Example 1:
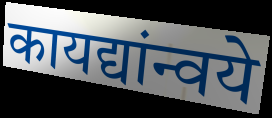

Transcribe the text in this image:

कायद्यांन्वये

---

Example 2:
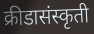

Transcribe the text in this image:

क्रीडासंस्कृती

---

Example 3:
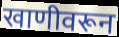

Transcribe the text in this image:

खाणीवरून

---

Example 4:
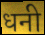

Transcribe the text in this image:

धनी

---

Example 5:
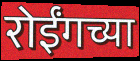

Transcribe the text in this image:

रोईंगच्या